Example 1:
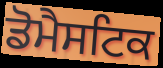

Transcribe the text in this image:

ਡੋਮੈਸਟਿਕ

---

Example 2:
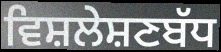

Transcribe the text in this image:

ਵਿਸ਼ਲੇਸ਼ਣਬੱਧ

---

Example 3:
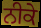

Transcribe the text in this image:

ਨੀਕੇ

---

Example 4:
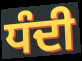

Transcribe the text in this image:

ਧੰਦੀ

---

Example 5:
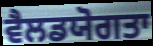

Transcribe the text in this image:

ਵੈਲਡਯੋਗਤਾ